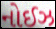
નોઈઝ